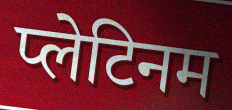
प्लेटिनम